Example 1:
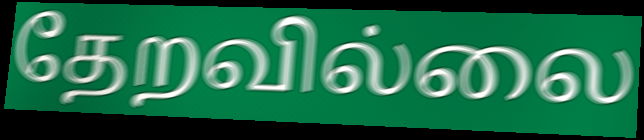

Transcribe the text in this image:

தேறவில்லை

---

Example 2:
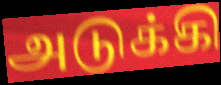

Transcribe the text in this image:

அடுக்கி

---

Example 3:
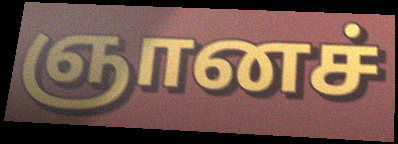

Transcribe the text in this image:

ஞானச்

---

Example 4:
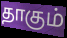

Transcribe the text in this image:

தாகும்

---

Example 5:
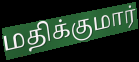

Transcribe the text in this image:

மதிக்குமார்